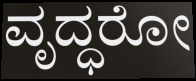
ವೃದ್ಧರೋ